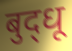
बुद्धू